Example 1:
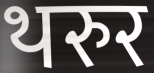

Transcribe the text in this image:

थरुर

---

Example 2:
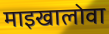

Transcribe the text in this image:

माइखालोवा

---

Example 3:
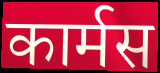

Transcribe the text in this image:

कार्मस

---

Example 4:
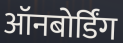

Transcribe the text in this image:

ऑनबोर्डिंग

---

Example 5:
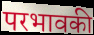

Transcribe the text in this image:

परभावकी